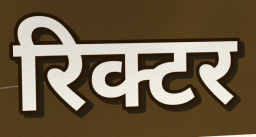
रिक्टर